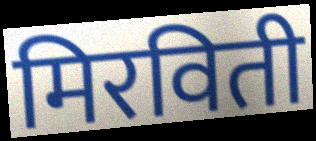
मिरविती